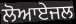
ਲੋਆਏਜਲ